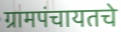
ग्रामपंचायतचे